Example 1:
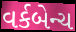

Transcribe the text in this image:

વર્કબેન્ચ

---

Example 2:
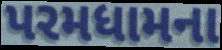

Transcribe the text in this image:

પરમધામના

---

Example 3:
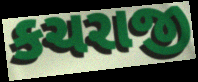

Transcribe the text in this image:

કચરાજી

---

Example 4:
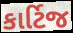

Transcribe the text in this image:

કાર્ટિજ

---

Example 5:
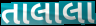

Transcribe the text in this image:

તાલાલા